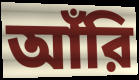
আঁরি